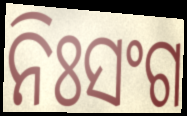
ନିଃସଂଗ